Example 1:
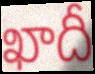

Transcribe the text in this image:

ఖాదీ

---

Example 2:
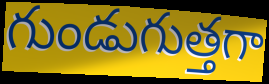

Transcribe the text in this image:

గుండుగుత్తగా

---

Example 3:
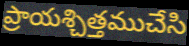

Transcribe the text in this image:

ప్రాయశ్చిత్తముచేసి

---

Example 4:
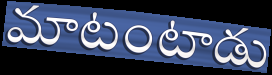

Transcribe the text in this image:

మాటంటాడు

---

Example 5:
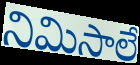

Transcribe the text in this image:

నిమిసాలే